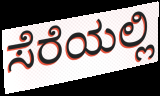
ಸೆರೆಯಲ್ಲಿ